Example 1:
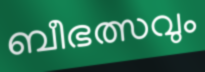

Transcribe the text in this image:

ബീഭത്സവും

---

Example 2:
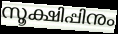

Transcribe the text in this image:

സൂക്ഷിപ്പിനും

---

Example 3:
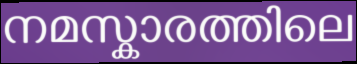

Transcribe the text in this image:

നമസ്കാരത്തിലെ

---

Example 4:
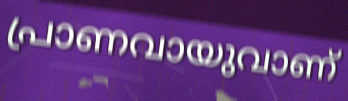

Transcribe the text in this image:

പ്രാണവായുവാണ്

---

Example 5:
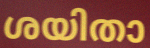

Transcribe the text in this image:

ശയിതാ